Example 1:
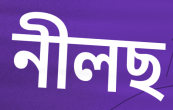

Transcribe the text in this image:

নীলছ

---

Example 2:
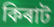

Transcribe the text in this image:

কিৰাট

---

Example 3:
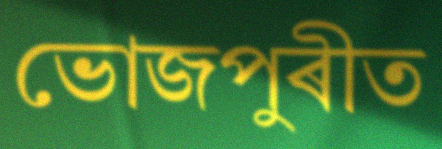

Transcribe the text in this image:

ভোজপুৰীত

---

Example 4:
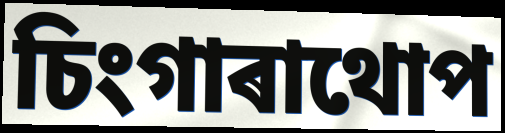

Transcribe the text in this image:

চিংগাৰাথোপ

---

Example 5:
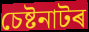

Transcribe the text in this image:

চেষ্টনাটৰ